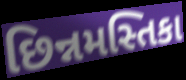
છિન્નમસ્તિકા